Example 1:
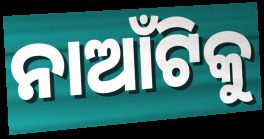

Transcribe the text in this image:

ନାଆଁଟିକୁ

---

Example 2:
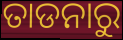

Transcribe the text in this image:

ତାଡନାରୁ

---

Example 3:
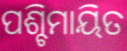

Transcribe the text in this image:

ପଶ୍ଚିମାୟିତ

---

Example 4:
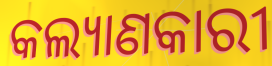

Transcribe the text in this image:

କଲ୍ୟାଣକାରୀ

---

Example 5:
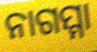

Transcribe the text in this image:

ନାଗମ୍ମା